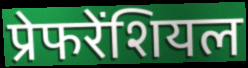
प्रेफरेंशियल